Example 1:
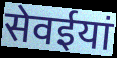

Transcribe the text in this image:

सेवईयां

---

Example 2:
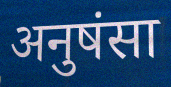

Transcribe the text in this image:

अनुषंसा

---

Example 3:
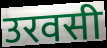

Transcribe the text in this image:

उरवसी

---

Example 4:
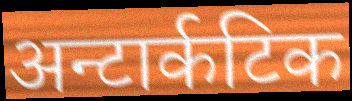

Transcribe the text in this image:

अन्टार्कटिक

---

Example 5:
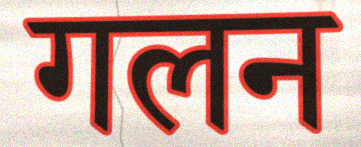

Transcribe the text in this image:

गलन